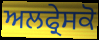
ਅਲਫ੍ਰੇਸਕੋ